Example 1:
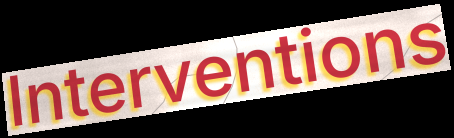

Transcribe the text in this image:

Interventions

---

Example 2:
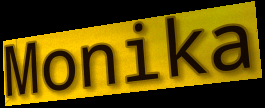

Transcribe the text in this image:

Monika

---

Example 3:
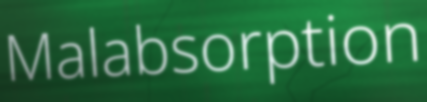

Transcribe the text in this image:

Malabsorption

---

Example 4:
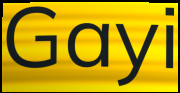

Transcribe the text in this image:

Gayi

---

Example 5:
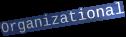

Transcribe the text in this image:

Organizational